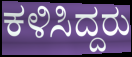
ಕಳಿಸಿದ್ದರು